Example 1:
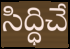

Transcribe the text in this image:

సిద్ధిచే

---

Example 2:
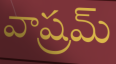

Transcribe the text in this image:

వాష్రమ్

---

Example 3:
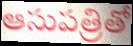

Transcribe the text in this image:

ఆసుపత్రితో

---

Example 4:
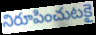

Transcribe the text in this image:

నిరూపించుటకై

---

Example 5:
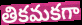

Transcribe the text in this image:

తికమకగా